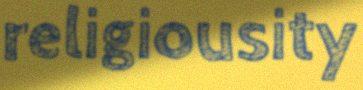
religiousity